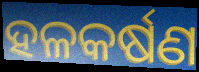
ହଳକର୍ଷଣ